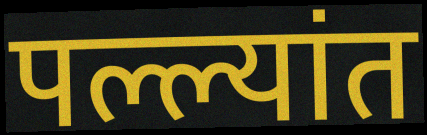
पल्ल्यांत